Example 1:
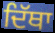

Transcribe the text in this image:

ਦਿੱਥਾ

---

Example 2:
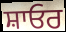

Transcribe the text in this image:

ਸ਼ਾਓਰ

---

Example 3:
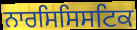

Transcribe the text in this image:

ਨਾਰਸਿਸਿਸਟਿਕ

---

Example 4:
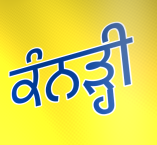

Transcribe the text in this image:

ਕੰਨੜ੍ਹੀ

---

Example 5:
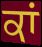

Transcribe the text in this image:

ਕਾਂ